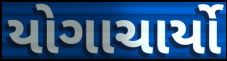
યોગાચાર્યો